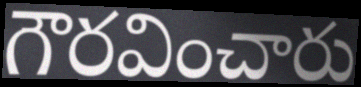
గౌరవించారు